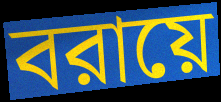
বরায়ে